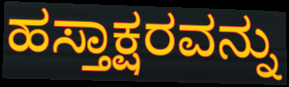
ಹಸ್ತಾಕ್ಷರವನ್ನು